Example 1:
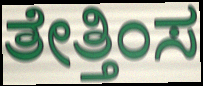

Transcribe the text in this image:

ತೇತ್ತಿಂಸ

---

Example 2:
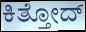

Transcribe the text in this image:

ಕಿತ್ತೋದ್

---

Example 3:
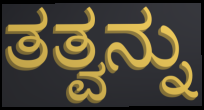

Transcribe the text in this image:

ತತ್ವನ್ನು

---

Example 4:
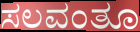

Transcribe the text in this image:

ಸಲವಂತೂ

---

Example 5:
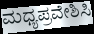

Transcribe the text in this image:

ಮಧ್ಯಪ್ರವೇಶಿಸಿ